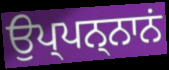
ਉਪ੍ਪਨ੍ਨਾਨਂ